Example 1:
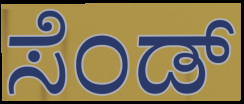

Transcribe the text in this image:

ಸೆಂಡ್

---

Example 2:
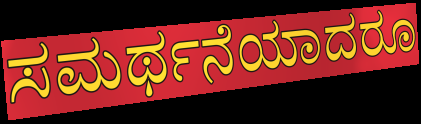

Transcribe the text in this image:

ಸಮರ್ಥನೆಯಾದರೂ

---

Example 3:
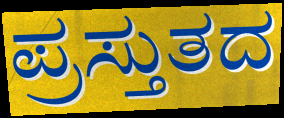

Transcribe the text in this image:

ಪ್ರಸ್ತುತದ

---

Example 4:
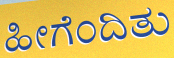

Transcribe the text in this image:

ಹೀಗೆಂದಿತು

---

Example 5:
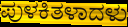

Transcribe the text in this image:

ಪುಳಕಿತಳಾದಳು